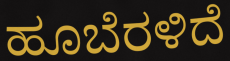
ಹೂಬೆರಳಿದೆ